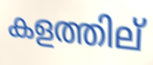
കളത്തില്